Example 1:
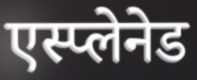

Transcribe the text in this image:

एस्प्लेनेड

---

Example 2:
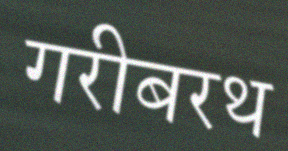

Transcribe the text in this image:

गरीबरथ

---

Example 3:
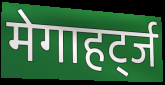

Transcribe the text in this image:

मेगाहर्ट्ज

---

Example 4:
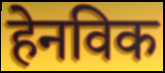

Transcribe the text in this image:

हेनविक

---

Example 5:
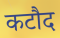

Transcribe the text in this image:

कटौद